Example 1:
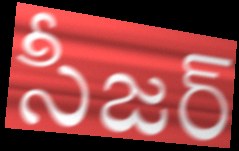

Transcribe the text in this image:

సీజర్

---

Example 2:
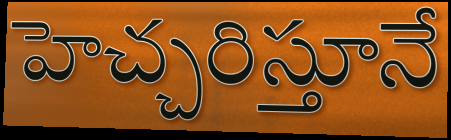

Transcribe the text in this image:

హెచ్చరిస్తూనే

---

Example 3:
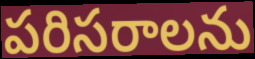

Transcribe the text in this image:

పరిసరాలను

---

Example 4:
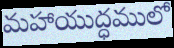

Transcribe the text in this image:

మహాయుద్ధములో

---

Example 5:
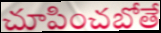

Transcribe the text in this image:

చూపించబోతే